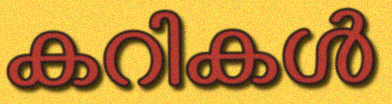
കറികൾ